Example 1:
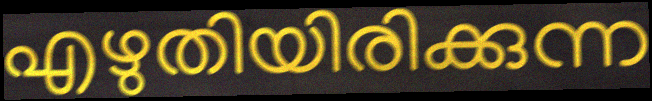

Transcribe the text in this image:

എഴുതിയിരിക്കുന്ന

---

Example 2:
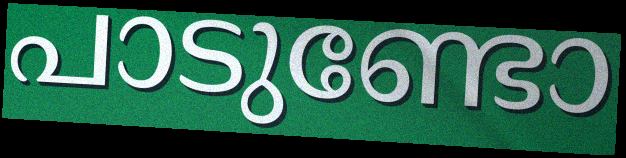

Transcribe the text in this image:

പാടുണ്ടോ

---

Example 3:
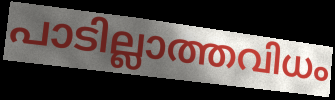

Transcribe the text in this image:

പാടില്ലാത്തവിധം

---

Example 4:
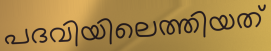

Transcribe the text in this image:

പദവിയിലെത്തിയത്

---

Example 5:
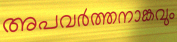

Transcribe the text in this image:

അപവർത്തനാങ്കവും